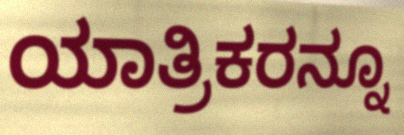
ಯಾತ್ರಿಕರನ್ನೂ